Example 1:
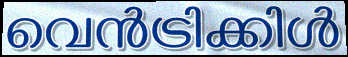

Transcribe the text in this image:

വെൻട്രിക്കിൾ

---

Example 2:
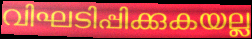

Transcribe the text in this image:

വിഘടിപ്പിക്കുകയല്ല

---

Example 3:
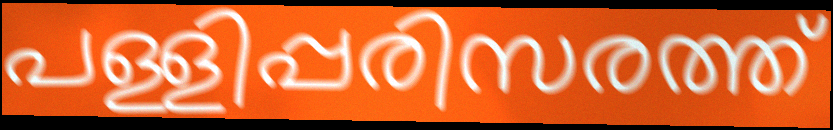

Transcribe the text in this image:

പള്ളിപ്പരിസരത്ത്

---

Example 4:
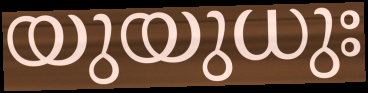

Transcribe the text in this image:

യുയുധുഃ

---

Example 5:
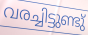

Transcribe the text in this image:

വരച്ചിട്ടുണ്ടു്